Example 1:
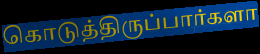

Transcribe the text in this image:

கொடுத்திருப்பார்களா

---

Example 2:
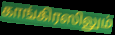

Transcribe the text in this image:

காங்கிரஸிலும்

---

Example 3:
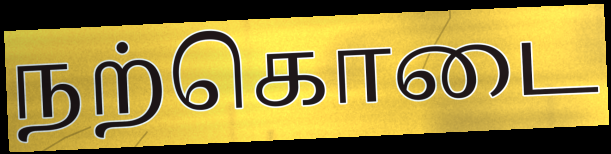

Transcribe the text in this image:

நற்கொடை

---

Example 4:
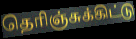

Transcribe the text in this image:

தெரிஞ்சுக்கிட்டு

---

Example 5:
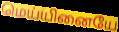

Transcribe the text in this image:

மெய்யினையே